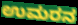
ಉಮರನ